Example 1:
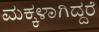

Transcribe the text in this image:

ಮಕ್ಕಳಾಗಿದ್ದರೆ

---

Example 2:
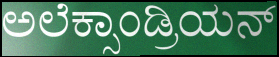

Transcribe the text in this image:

ಅಲೆಕ್ಸಾಂಡ್ರಿಯನ್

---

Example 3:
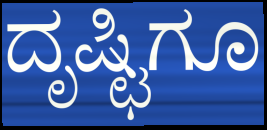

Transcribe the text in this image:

ದೃಷ್ಟಿಗೂ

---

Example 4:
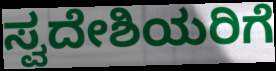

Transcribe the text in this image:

ಸ್ವದೇಶಿಯರಿಗೆ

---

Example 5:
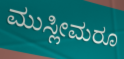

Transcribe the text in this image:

ಮುಸ್ಲೀಮರೂ